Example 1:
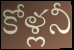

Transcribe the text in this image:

కోళ్లనీ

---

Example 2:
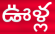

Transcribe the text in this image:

ఊళ్ల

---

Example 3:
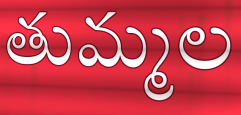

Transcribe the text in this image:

తుమ్మల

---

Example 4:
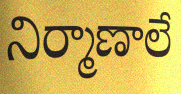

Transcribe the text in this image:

నిర్మాణాలే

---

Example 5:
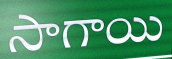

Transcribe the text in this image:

సాగాయి